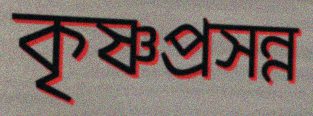
কৃষ্ণপ্রসন্ন